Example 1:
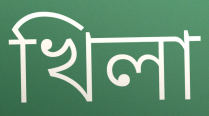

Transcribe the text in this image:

খিলা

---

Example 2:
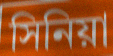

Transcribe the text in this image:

সিনিয়া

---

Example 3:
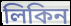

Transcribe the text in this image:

লিকিন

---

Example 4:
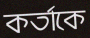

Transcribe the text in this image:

কর্তাকে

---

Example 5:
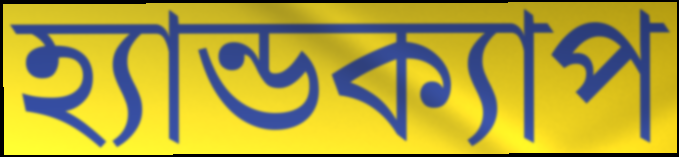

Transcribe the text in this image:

হ্যান্ডক্যাপ